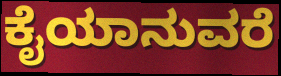
ಕೈಯಾನುವರೆ